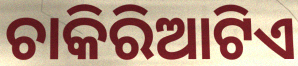
ଚାକିରିଆଟିଏ